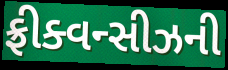
ફ્રીક્વન્સીઝની